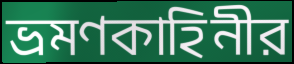
ভ্রমণকাহিনীর